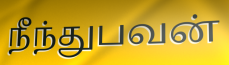
நீந்துபவன்